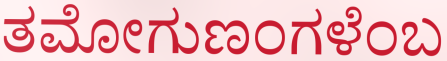
ತಮೋಗುಣಂಗಳೆಂಬ